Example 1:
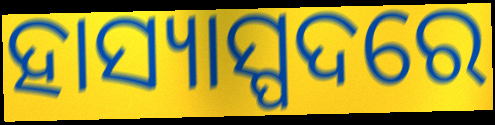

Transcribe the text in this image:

ହାସ୍ୟାସ୍ପଦରେ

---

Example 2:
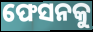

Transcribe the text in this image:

ଫେସନକୁ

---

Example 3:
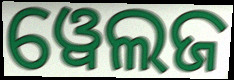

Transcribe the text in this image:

ୱେଲଜ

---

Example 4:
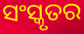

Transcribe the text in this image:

ସଂସ୍କୃତର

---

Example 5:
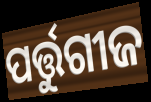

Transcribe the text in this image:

ପର୍ତ୍ତୁଗୀଜ